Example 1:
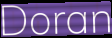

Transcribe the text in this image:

Doran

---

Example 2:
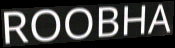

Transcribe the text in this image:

ROOBHA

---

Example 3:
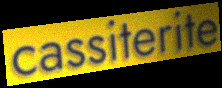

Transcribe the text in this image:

cassiterite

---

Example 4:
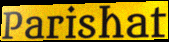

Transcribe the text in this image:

Parishat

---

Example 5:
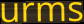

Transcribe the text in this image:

urms